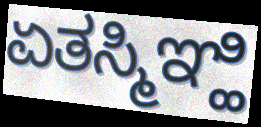
ಏತಸ್ಮಿಞ್ಹಿ